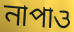
নাপাও